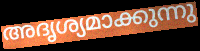
അദൃശ്യമാക്കുന്നു